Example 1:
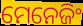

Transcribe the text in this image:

ମେନେଜିଂ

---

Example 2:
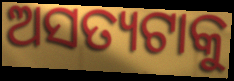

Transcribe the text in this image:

ଅସତ୍ୟଟାକୁ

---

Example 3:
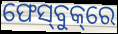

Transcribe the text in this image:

ଫେସ୍‌ବୁକ୍‌ରେ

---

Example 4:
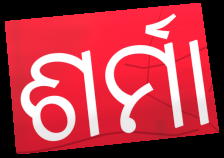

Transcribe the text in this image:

ଶର୍ମା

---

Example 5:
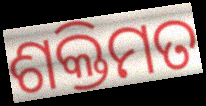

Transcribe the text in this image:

ଶକ୍ତିମତ